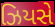
ઝિયસે